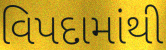
વિપદામાંથી